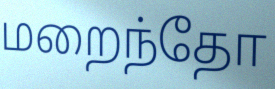
மறைந்தோ